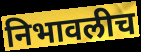
निभावलीच